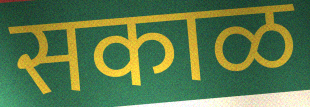
सकाळ